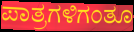
ಪಾತ್ರಗಳಿಗಂತೂ